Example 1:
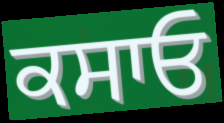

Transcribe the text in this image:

ਕਸਾਓ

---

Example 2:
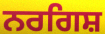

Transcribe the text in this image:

ਨਰਗਿਸ਼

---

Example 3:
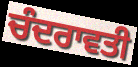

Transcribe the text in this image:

ਚੰਦਰਾਵਤੀ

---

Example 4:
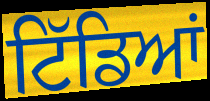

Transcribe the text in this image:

ਟਿੱਡਿਆਂ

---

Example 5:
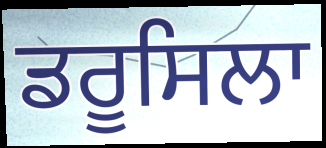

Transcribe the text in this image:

ਡਰੂਸਿਲਾ